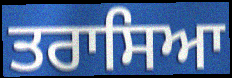
ਤਰਾਸਿਆ